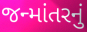
જન્માંતરનું